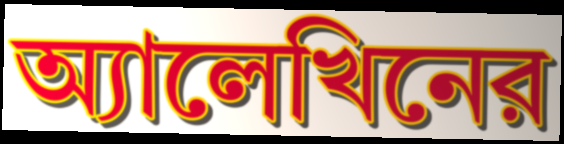
অ্যালেখিনের